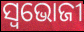
ସ୍ବଭୋଜୀ